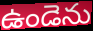
ఉండెను